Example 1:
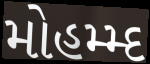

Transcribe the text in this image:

મોહમ્મ્દ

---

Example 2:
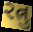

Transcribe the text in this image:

રત્નુ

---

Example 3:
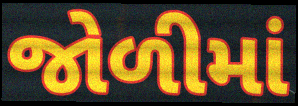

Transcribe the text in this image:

જોળીમાં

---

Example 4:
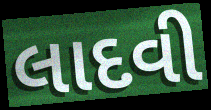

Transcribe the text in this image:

લાદવી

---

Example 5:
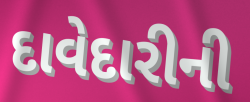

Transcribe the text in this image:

દાવેદારીની